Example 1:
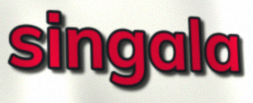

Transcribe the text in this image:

singala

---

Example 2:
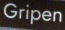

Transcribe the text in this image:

Gripen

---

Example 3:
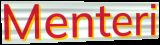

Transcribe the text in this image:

Menteri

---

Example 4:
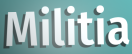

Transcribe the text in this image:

Militia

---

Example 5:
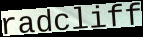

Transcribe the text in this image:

radcliff